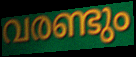
വരണ്ടും